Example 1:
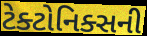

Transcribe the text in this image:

ટેક્ટોનિક્સની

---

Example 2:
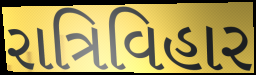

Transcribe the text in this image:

રાત્રિવિહાર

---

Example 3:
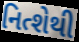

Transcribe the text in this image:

નિત્શેથી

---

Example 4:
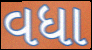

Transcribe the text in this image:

વધા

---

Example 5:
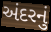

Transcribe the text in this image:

અંદરનું